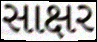
સાક્ષર